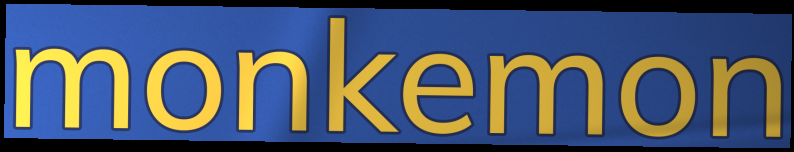
monkemon